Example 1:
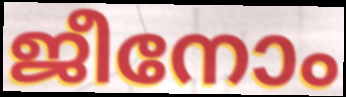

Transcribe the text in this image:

ജീനോം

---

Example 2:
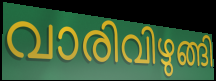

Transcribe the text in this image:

വാരിവിഴുങ്ങി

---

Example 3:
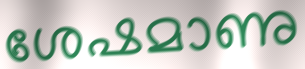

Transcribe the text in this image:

ശേഷമാണു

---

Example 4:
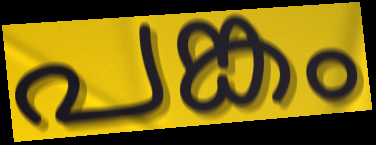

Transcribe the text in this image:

പങ്കം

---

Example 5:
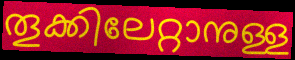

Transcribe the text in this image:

തൂക്കിലേറ്റാനുള്ള